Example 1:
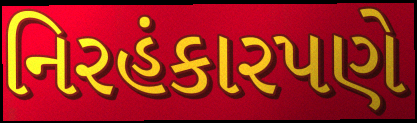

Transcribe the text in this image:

નિરહંકારપણે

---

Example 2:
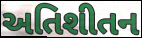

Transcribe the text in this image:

અતિશીતન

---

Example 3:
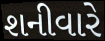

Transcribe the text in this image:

શનીવારે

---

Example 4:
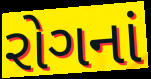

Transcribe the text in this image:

રોગનાં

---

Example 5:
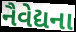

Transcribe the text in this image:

નૈવેદ્યના